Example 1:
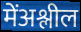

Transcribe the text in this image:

मेंअश्लील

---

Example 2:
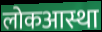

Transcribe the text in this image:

लोकआस्था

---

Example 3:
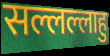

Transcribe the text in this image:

सल्लल्लाहु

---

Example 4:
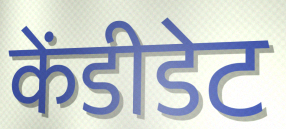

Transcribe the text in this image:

केंडीडेट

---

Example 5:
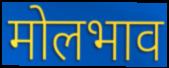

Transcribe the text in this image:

मोलभाव